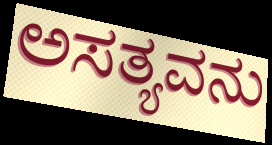
ಅಸತ್ಯವನು